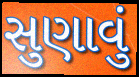
સુણાવું